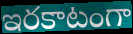
ఇరకాటంగా